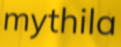
mythila